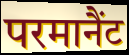
परमानैंट